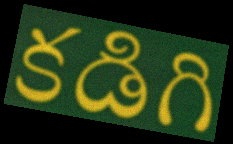
కడిగి